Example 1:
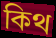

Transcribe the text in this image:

কিথ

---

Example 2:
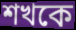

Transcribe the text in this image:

শখকে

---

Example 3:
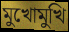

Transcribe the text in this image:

মুখোমুখি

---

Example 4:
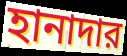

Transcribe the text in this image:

হানাদার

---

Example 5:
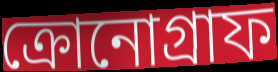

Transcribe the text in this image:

ক্রোনোগ্রাফ